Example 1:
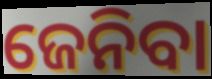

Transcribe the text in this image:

ଜେନିବା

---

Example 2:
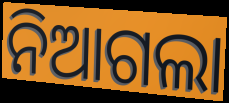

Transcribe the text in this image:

ନିଆଗଲା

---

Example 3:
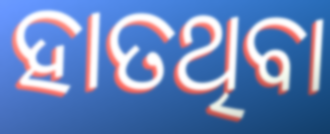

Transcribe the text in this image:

ହାତଥିବା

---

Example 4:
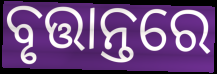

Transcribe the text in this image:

ବୃତ୍ତାନ୍ତରେ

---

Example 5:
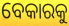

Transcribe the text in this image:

ବେକାରକୁ